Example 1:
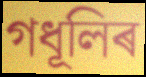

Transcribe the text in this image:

গধূলিৰ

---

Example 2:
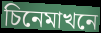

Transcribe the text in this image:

চিনেমাখনে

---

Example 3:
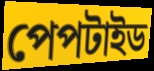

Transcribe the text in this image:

পেপটাইড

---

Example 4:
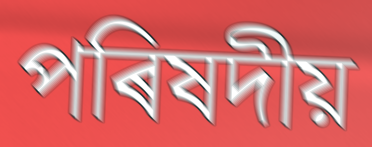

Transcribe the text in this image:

পৰিষদীয়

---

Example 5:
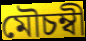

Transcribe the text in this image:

মৌচম্বী